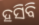
ହସିବି